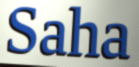
Saha